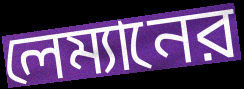
লেম্যানের